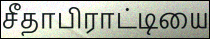
சீதாபிராட்டியை